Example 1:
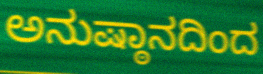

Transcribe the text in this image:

ಅನುಷ್ಠಾನದಿಂದ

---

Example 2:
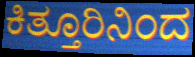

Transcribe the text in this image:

ಕಿತ್ತೂರಿನಿಂದ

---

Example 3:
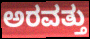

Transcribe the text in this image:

ಅರವತ್ತು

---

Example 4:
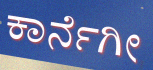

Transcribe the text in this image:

ಕಾರ್ನೆಗೀ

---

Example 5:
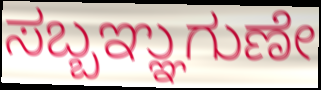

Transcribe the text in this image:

ಸಬ್ಬಞ್ಞುಗುಣೇ